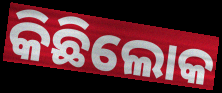
କିଛିଲୋକ